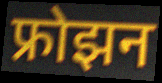
फ्रोझन